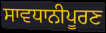
ਸਾਵਧਾਨੀਪੂਰਣ